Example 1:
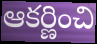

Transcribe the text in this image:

ఆకర్ణించి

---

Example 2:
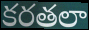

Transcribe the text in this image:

కరతలా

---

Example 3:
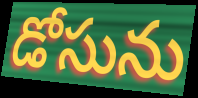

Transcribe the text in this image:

డోసును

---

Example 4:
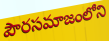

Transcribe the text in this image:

పౌరసమాజంలోని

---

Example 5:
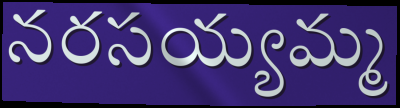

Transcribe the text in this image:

నరసయ్యమ్మ